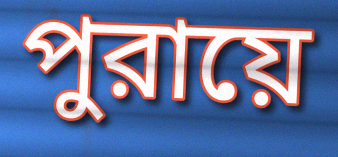
পুরায়ে